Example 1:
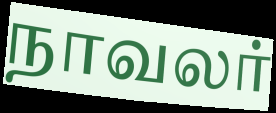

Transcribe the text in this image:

நாவலர்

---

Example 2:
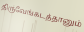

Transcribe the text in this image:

திருவேங்கடத்தானும்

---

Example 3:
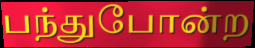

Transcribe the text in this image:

பந்துபோன்ற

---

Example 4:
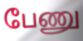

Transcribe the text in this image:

பேணு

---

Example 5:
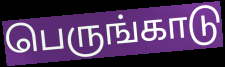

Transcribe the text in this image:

பெருங்காடு